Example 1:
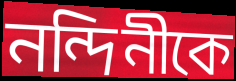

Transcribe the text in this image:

নন্দিনীকে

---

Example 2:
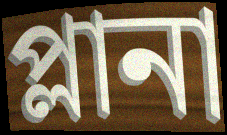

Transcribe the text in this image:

প্লানা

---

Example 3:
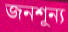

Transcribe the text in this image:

জনশূন্য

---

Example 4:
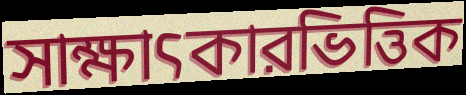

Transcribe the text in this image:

সাক্ষাৎকারভিত্তিক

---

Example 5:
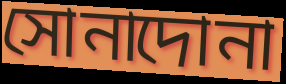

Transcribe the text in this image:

সোনাদোনা